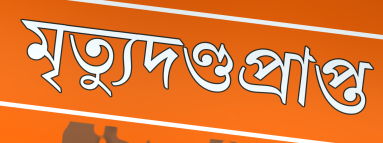
মৃত্যুদণ্ডপ্রাপ্ত